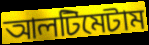
আলটিমেটাম